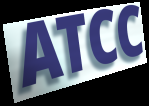
ATCC